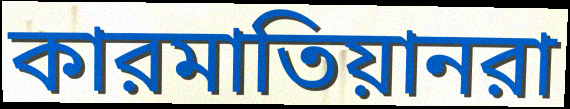
কারমাতিয়ানরা